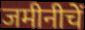
जमीनीचें